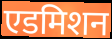
एडमिशन